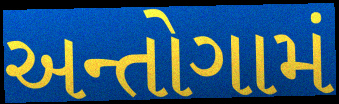
અન્તોગામં